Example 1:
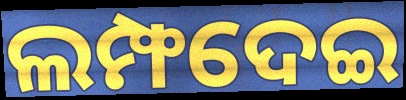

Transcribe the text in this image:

ଲମ୍ଫଦେଇ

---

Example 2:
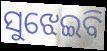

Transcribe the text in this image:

ସୁଝେଇବି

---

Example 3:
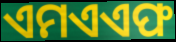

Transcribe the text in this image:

ଏମଏଏଫ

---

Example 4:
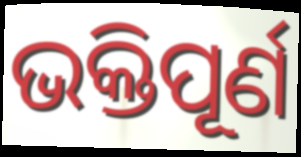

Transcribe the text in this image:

ଭକ୍ତିପୂର୍ଣ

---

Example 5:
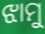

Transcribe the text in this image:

ଝାମୁ